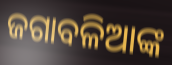
ଜଗାବଳିଆଙ୍କ